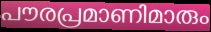
പൗരപ്രമാണിമാരും